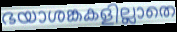
ഭയാശങ്കകളില്ലാതെ